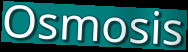
Osmosis